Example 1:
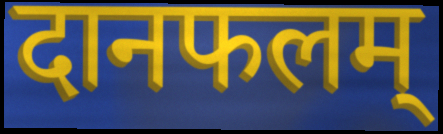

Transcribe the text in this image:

दानफलम्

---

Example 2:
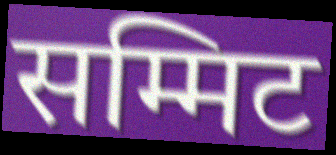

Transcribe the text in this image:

सम्मिट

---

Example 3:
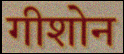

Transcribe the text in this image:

गीशोन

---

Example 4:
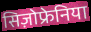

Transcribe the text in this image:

सिज़ोफ्रेनिया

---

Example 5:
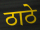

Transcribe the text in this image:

ठाठे